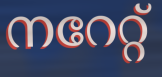
നറേറ്റ്